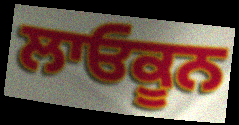
ਲਾਓਕੂਨ